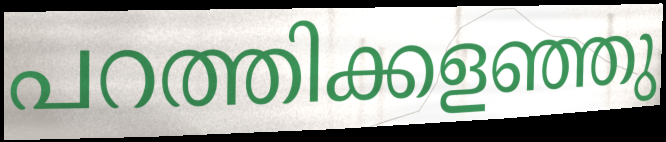
പറത്തിക്കളഞ്ഞു